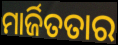
ମାର୍ଜିତତାର